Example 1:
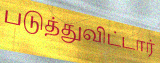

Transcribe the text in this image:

படுத்துவிட்டார்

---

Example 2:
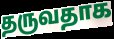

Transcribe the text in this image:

தருவதாக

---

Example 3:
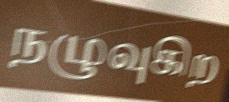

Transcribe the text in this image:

நழுவுகிற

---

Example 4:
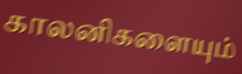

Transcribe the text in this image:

காலனிகளையும்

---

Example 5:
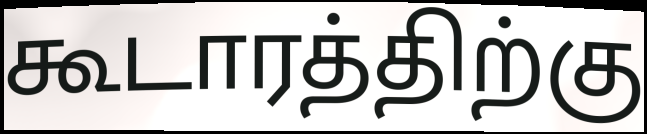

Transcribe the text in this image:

கூடாரத்திற்கு